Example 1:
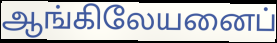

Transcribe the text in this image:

ஆங்கிலேயனைப்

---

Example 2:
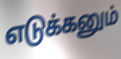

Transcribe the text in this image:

எடுக்கனும்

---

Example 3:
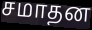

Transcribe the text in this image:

சமாதன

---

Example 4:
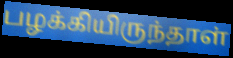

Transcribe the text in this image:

பழக்கியிருந்தாள்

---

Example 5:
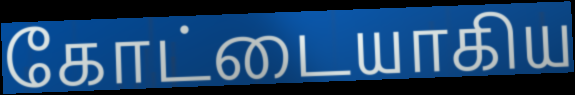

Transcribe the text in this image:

கோட்டையாகிய